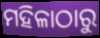
ମହିଳାଠାରୁ